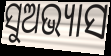
ସୁଅଭ୍ୟାସ